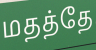
மதத்தே